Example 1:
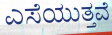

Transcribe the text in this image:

ಎಸೆಯುತ್ತವೆ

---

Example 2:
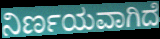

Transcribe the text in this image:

ನಿರ್ಣಯವಾಗಿದೆ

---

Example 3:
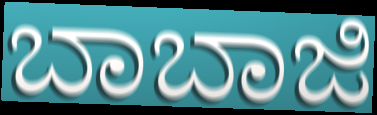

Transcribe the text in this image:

ಬಾಬಾಜಿ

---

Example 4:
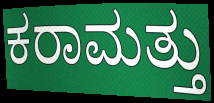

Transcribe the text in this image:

ಕರಾಮತ್ತು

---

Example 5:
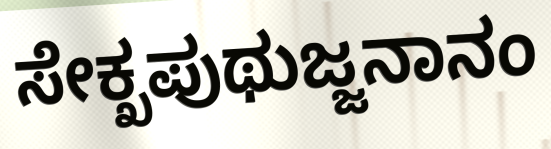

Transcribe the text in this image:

ಸೇಕ್ಖಪುಥುಜ್ಜನಾನಂ